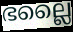
ഭല്ലൈ